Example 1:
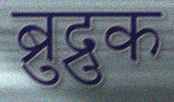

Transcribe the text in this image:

ब्रुद्रुक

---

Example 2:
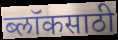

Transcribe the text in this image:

ब्लॉकसाठी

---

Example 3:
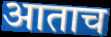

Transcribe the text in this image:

आताच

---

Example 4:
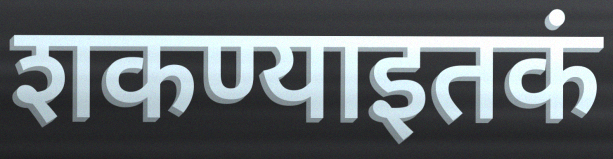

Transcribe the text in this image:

शकण्याइतकं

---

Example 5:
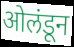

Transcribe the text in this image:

ओलंडून